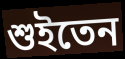
শুইতেন